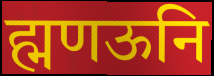
ह्मणऊनि